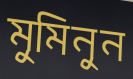
মুমিনুন